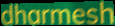
dharmesh